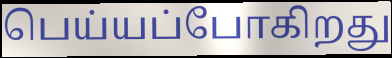
பெய்யப்போகிறது